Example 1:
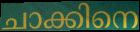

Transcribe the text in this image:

ചാക്കിനെ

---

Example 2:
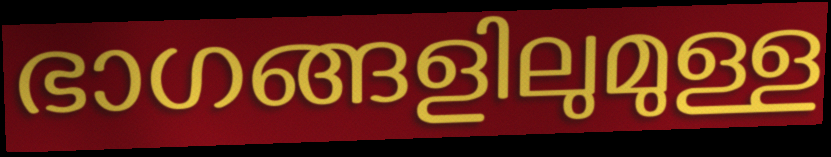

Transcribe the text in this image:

ഭാഗങ്ങളിലുമുള്ള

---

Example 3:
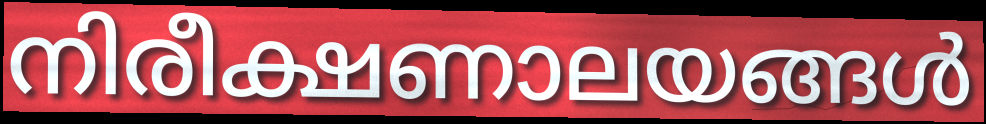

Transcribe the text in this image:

നിരീക്ഷണാലയങ്ങൾ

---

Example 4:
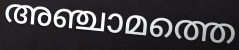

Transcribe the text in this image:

അഞ്ചാമത്തെ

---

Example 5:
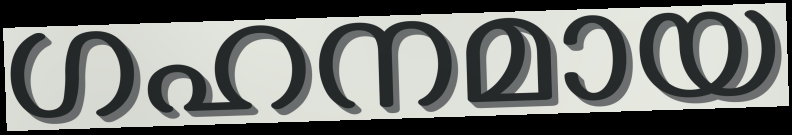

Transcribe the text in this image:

ഗഹനമായ